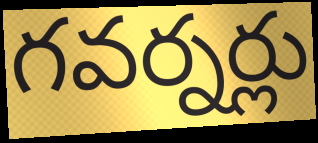
గవర్నర్లు